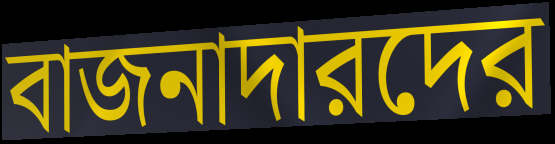
বাজনাদারদের